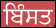
ਬਿੰਸਤ